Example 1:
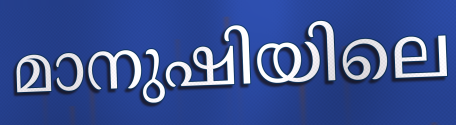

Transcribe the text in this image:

മാനുഷിയിലെ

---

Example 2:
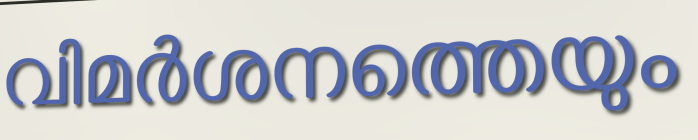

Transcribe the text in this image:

വിമർശനത്തെയും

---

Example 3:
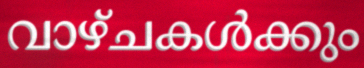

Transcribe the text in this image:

വാഴ്ചകൾക്കും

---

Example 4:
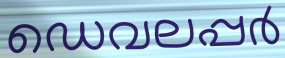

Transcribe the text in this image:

ഡെവലപ്പർ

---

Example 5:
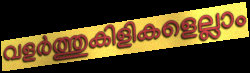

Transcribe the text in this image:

വളർത്തുകിളികളെല്ലാം